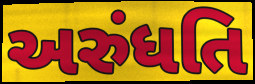
અરુંધતિ